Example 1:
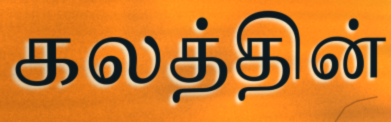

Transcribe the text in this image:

கலத்தின்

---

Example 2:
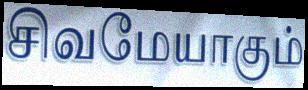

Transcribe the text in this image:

சிவமேயாகும்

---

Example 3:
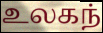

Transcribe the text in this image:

உலகந்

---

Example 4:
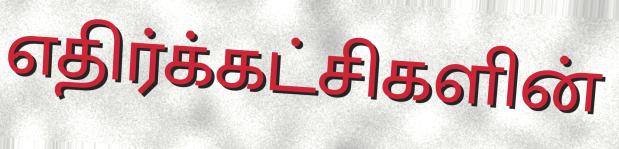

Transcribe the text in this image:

எதிர்க்கட்சிகளின்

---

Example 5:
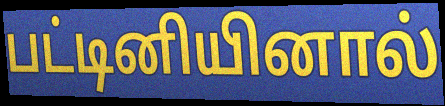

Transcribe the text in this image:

பட்டினியினால்